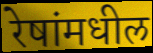
रेषांमधील